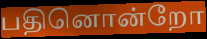
பதினொன்றோ